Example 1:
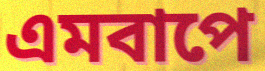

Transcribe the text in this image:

এমবাপে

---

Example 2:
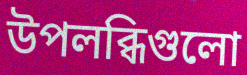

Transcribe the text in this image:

উপলব্ধিগুলো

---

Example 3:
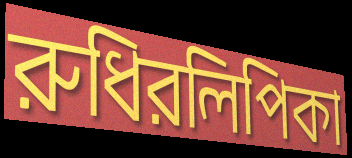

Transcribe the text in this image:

রুধিরলিপিকা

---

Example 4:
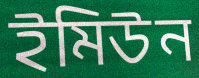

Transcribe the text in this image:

ইমিউন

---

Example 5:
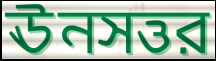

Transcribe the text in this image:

ঊনসত্তর